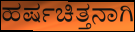
ಹರ್ಷಚಿತ್ತನಾಗಿ